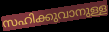
സഹിക്കുവാനുള്ള